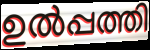
ഉൽപ്പത്തി